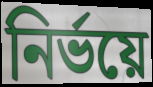
নিৰ্ভয়ে